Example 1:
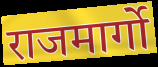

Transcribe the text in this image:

राजमार्गो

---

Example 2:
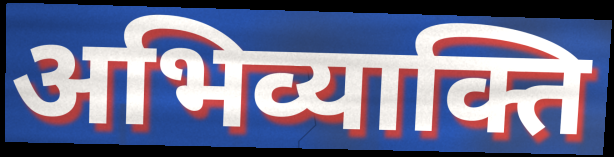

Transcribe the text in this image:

अभिव्याक्ति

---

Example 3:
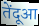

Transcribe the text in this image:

तेंदूआ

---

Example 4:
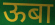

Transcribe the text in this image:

ऊबा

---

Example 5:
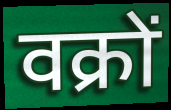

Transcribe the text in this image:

वक्रों